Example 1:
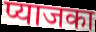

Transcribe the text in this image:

प्याजका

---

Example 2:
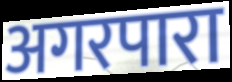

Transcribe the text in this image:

अगरपारा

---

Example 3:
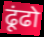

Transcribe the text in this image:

ढूंढो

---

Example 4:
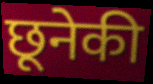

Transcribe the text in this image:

छूनेकी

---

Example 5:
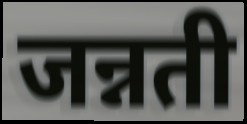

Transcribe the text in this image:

जन्नती